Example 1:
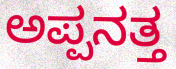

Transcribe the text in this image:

ಅಪ್ಪನತ್ತ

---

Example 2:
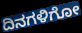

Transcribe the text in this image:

ದಿನಗಳಿಗೋ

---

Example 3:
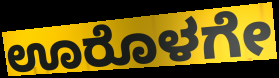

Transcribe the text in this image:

ಊರೊಳಗೇ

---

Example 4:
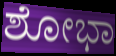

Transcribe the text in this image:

ಶೋಭಾ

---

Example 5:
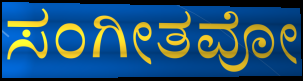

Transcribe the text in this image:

ಸಂಗೀತವೋ